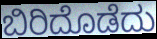
ಬಿರಿದೊಡೆದು